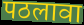
पठलावा